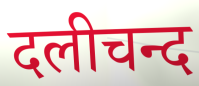
दलीचन्द